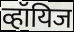
व्हॉयिज